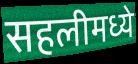
सहलीमध्ये